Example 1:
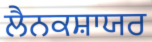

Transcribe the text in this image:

ਲੈਨਕਸ਼ਾਯਰ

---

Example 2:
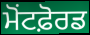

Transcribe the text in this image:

ਮੋਂਟਫ਼ੋਰਡ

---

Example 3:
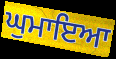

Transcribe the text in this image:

ਘੁਮਾਇਆ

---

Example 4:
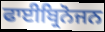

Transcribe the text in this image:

ਫਾਈਬ੍ਰਿਨੋਜਨ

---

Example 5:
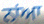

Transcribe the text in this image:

ਨਾਂਆ